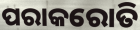
ପରାକରୋତି